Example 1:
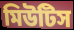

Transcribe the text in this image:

মিউটিস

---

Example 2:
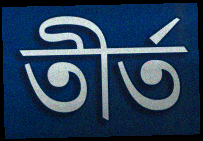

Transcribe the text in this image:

তীর্ত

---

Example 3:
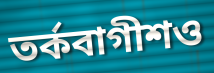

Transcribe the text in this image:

তর্কবাগীশও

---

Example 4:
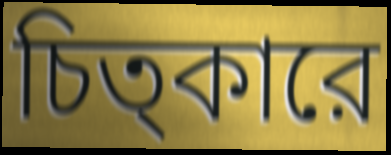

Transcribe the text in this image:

চিত্কারে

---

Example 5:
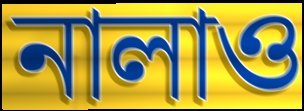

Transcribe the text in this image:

নালাও